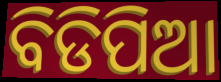
ବିଡିପିଆ